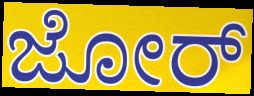
ಜೋರ್